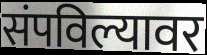
संपविल्यावर